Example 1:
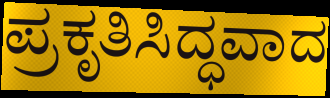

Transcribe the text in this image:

ಪ್ರಕೃತಿಸಿದ್ಧವಾದ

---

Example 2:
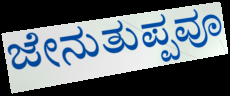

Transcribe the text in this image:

ಜೇನುತುಪ್ಪವೂ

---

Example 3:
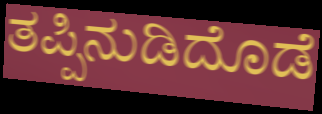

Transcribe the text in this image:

ತಪ್ಪಿನುಡಿದೊಡೆ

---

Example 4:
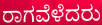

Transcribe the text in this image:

ರಾಗವೆಳೆದರು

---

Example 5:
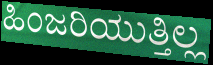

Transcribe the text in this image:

ಹಿಂಜರಿಯುತ್ತಿಲ್ಲ